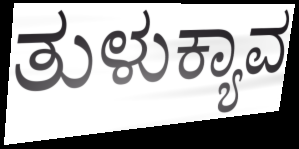
ತುಳುಕ್ಯಾವ